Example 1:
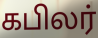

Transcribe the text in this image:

கபிலர்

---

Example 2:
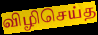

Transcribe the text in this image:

விழிசெய்த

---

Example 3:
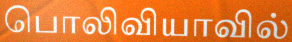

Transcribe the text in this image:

பொலிவியாவில்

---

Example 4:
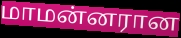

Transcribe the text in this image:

மாமன்னரான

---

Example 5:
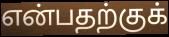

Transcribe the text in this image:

என்பதற்குக்